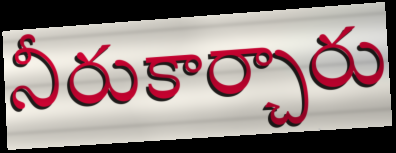
నీరుకార్చారు